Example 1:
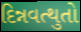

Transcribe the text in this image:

દિન્નવત્થુતો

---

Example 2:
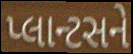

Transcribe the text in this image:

પ્લાન્ટસને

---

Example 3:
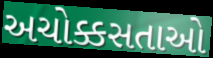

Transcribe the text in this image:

અચોક્કસતાઓ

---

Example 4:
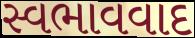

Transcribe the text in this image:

સ્વભાવવાદ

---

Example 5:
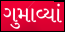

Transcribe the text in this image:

ગુમાવ્યાં